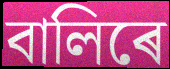
বালিৰে